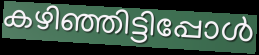
കഴിഞ്ഞിട്ടിപ്പോൾ